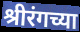
श्रीरंगच्या